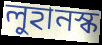
লুহানস্ক